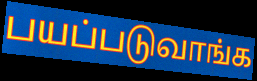
பயப்படுவாங்க